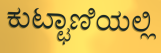
ಕುಟ್ಟಾಣಿಯಲ್ಲಿ